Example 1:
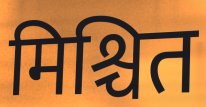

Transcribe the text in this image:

मिश्चित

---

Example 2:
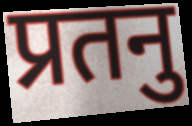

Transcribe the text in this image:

प्रतनु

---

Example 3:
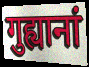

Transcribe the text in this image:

गुह्यानां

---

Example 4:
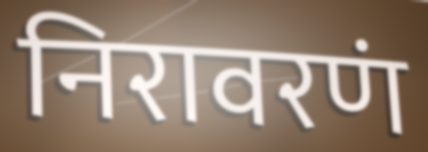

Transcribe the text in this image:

निरावरणं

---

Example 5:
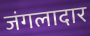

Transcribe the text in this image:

जंगलादार